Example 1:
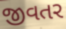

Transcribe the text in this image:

જીવતર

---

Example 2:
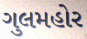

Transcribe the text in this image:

ગુલમહોર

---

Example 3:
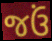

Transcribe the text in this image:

જઉં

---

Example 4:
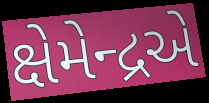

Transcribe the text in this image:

ક્ષેમેન્દ્રએ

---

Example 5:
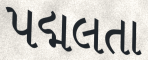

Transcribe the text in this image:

પદ્મલતા